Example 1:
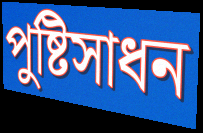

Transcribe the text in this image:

পুষ্টিসাধন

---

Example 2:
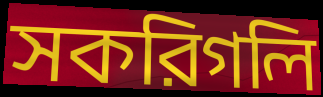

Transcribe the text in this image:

সকরিগলি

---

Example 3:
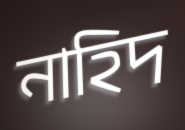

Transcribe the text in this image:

নাহিদ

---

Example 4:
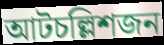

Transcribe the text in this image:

আটচল্লিশজন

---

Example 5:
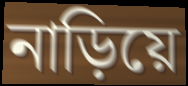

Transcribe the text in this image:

নাড়িয়ে